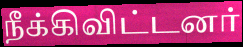
நீக்கிவிட்டனர்